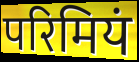
परिमियं